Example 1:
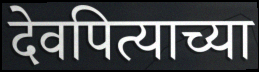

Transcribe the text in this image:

देवपित्याच्या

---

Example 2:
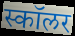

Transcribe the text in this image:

स्कॉलर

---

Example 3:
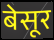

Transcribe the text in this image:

बेसूर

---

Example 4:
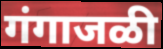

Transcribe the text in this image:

गंगाजळी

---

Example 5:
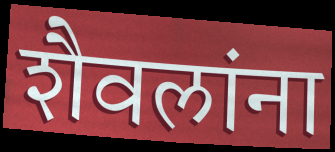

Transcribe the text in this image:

शैवलांना